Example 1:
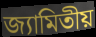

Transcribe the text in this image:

জ্যামিতীয়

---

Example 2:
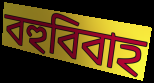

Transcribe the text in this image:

বহুবিবাহ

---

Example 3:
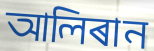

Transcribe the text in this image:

আলিৰান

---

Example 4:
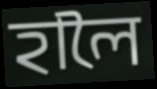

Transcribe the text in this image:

হালৈ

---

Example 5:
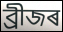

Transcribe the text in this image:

ব্ৰীজৰ